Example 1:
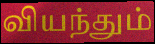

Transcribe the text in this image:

வியந்தும்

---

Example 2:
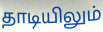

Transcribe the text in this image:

தாடியிலும்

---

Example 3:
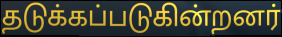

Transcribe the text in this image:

தடுக்கப்படுகின்றனர்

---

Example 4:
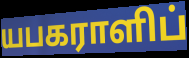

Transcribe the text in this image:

யபகராளிப்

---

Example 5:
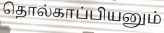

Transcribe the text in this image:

தொல்காப்பியனும்